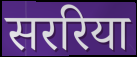
सररिया